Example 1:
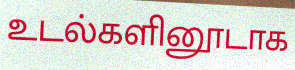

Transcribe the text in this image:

உடல்களினூடாக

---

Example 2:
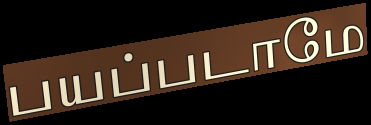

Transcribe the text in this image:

பயப்படாமே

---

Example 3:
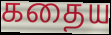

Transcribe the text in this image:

கதைய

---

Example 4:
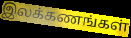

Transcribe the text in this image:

இலக்கணங்கள்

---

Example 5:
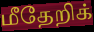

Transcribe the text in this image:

மீதேறிக்